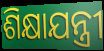
ଶିକ୍ଷାଯନ୍ତ୍ରୀ